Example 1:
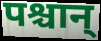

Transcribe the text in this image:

पश्चान्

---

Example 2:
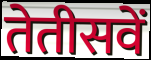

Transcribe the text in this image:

तेतीसवें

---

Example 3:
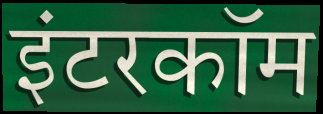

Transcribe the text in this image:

इंटरकॉम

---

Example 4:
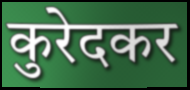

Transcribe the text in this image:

कुरेदकर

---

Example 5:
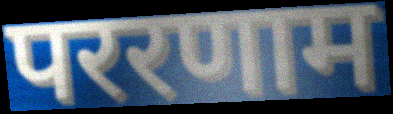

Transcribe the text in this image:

पररणाम